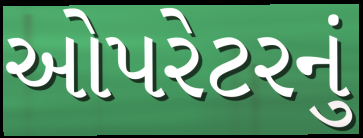
ઓપરેટરનું